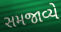
સમજાવ્યે